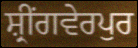
ਸ਼੍ਰੀਂਗਵੇਰਪੁਰ